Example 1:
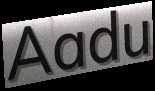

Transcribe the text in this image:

Aadu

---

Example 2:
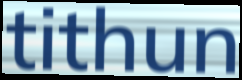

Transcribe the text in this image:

tithun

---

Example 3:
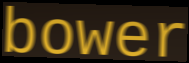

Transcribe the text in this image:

bower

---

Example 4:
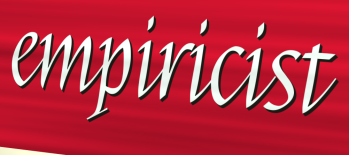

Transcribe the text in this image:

empiricist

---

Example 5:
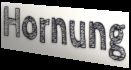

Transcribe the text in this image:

Hornung